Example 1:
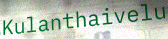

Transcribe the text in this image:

Kulanthaivelu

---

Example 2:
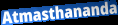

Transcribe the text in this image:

Atmasthananda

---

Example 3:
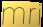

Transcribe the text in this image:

mri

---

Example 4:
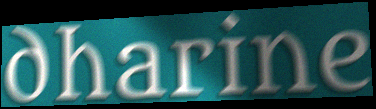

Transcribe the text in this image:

dharine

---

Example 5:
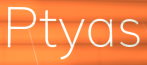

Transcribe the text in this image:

Ptyas